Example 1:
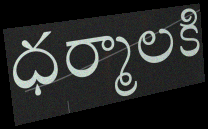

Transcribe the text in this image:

ధర్మాలకి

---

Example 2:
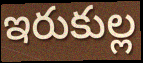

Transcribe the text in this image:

ఇరుకుల్ల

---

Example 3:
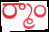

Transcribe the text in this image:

ర్మాం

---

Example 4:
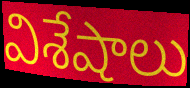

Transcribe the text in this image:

విశేషాలు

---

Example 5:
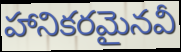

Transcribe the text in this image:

హానికరమైనవీ